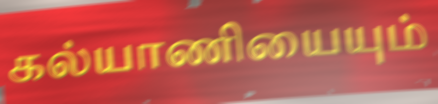
கல்யாணியையும்